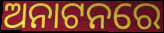
ଅନାଟନରେ